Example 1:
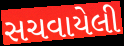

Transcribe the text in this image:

સચવાયેલી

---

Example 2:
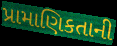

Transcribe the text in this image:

પ્રામાણિકતાની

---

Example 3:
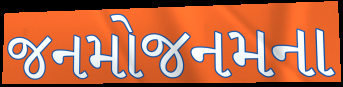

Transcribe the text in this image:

જનમોજનમના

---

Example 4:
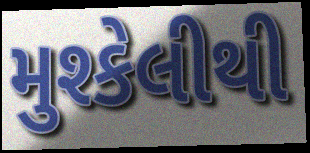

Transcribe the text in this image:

મુશ્કેલીથી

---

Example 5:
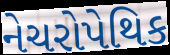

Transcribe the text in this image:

નેચરોપેથિક